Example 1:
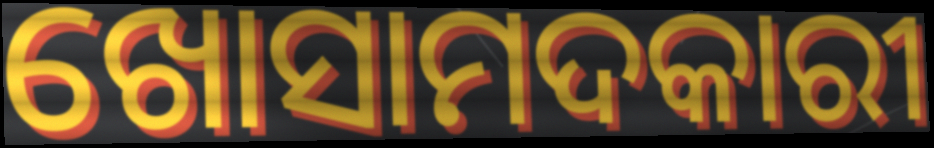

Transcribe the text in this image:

ଖୋସାମଦକାରୀ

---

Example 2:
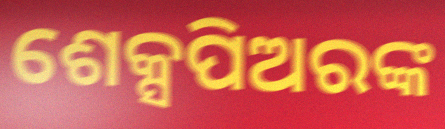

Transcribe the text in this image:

ଶେକ୍ସପିଅରଙ୍କ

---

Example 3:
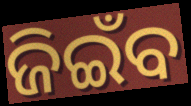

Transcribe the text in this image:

ଜିଇଁବ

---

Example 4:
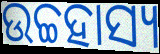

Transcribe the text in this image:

ଉଚ୍ଚହାସ୍ୟ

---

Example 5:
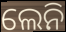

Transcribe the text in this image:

ଲେନି